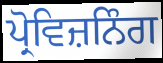
ਪ੍ਰੋਵਿਜ਼ਨਿੰਗ